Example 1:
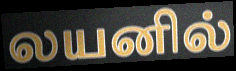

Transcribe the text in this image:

லயனில்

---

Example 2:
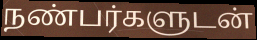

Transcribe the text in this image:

நண்பர்களுடன்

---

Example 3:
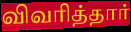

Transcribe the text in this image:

விவரித்தார்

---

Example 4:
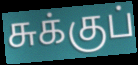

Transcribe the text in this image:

சுக்குப்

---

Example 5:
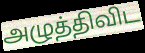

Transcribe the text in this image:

அழுத்திவிட